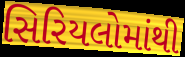
સિરિયલોમાંથી